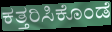
ಕತ್ತರಿಸಿಕೊಂಡೆ